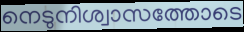
നെടുനിശ്വാസത്തോടെ